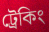
ট্রেকিং